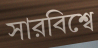
সারবিশ্বে